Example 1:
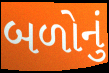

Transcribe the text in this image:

બળોનું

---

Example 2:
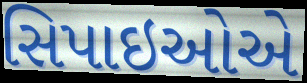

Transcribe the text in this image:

સિપાઇઓએ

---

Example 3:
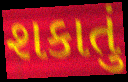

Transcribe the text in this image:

શકાતું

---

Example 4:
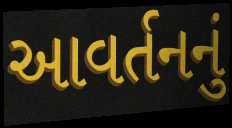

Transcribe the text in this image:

આવર્તનનું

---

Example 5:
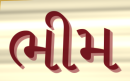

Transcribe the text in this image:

ભીમ